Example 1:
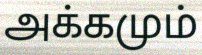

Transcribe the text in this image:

அக்கமும்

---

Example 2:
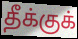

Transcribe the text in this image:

தீக்குக்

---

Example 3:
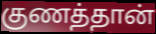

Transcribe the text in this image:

குணத்தான்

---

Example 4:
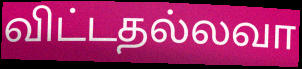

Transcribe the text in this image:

விட்டதல்லவா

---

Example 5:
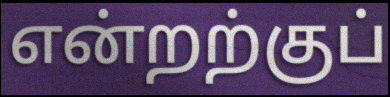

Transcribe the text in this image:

என்றற்குப்